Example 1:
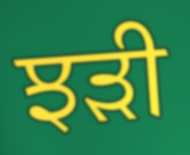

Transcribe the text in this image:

ਝੜੀ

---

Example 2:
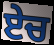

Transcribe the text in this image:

ਏਚ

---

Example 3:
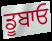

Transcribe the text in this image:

ਡੂਬਾਓ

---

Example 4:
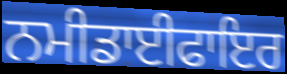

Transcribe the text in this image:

ਨਮੀਡਾਈਫਾਇਰ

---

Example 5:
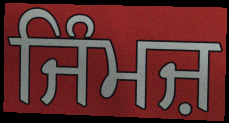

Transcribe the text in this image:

ਜਿੰਮਜ਼